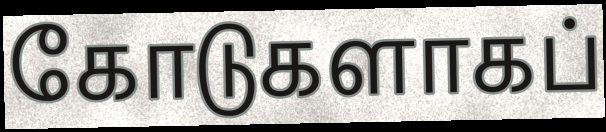
கோடுகளாகப்